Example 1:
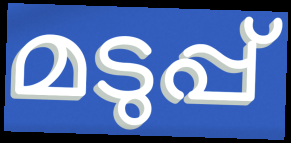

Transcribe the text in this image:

മടുപ്പ്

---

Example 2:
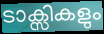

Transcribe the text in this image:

ടാക്സികളും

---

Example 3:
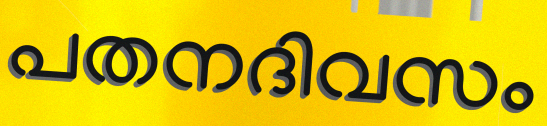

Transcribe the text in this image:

പതനദിവസം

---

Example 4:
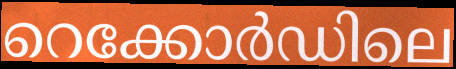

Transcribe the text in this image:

റെക്കോർഡിലെ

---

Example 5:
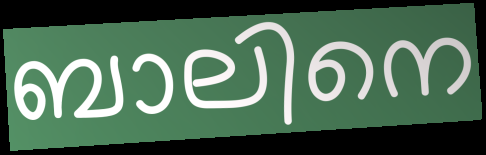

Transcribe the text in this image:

ബാലിനെ